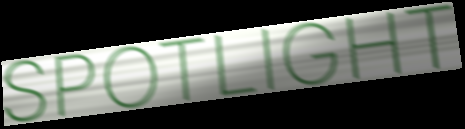
SPOTLIGHT